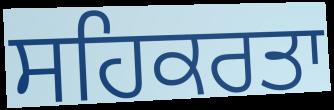
ਸਹਿਕਰਤਾ